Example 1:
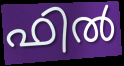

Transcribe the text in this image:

ഫിൽ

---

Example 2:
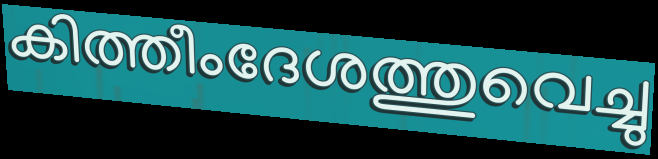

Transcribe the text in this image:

കിത്തീംദേശത്തുവെച്ചു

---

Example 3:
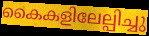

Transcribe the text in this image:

കൈകളിലേല്പിച്ചു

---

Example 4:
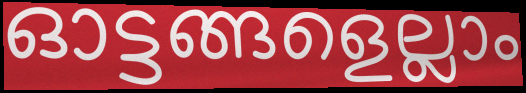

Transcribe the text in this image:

ഓട്ടങ്ങളെല്ലാം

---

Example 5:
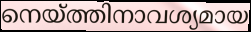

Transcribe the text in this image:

നെയ്ത്തിനാവശ്യമായ